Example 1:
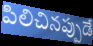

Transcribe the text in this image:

పిలిచినప్పుడే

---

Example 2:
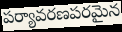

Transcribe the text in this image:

పర్యావరణపరమైన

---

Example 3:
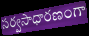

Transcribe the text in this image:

సర్వసాధారణంగా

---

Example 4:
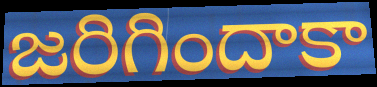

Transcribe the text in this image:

జరిగిందాకా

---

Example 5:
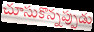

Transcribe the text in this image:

చూసుకొన్నప్పుడు